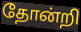
தோன்றி